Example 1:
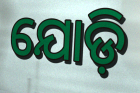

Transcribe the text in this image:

ଯୋଡ଼ି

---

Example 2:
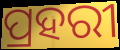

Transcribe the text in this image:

ପ୍ରହରୀ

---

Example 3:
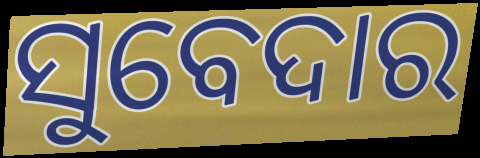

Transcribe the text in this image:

ସୁବେଦାର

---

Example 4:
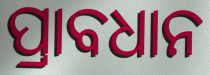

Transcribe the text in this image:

ପ୍ରାବଧାନ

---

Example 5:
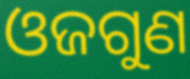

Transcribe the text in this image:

ଓଜଗୁଣ